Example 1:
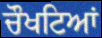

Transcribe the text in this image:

ਚੌਖਟਿਆਂ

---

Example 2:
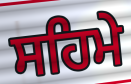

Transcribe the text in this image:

ਸਹਿਮੇ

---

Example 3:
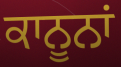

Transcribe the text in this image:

ਕਾਨੂਨਾਂ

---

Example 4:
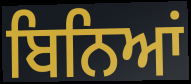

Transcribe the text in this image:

ਬਿਨਿਆਂ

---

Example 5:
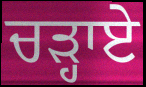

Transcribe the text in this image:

ਚੜ੍ਹਾਏ